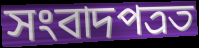
সংবাদপত্ৰত